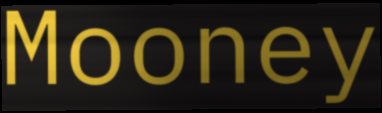
Mooney